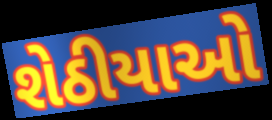
શેઠીયાઓ